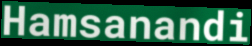
Hamsanandi